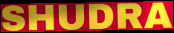
SHUDRA